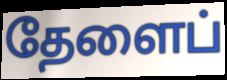
தேளைப்